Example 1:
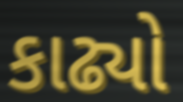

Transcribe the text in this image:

કાઢ્યો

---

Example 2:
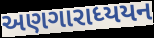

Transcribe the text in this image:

અણગારાધ્યયન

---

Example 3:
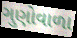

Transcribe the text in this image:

ગુણોવાળા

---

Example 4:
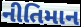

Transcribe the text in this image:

નીતિમાન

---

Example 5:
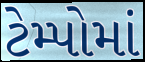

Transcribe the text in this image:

ટેમ્પોમાં